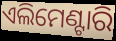
ଏଲିମେଣ୍ଟାରି